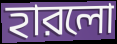
হারলো